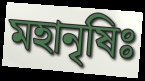
মহানৃষিঃ